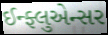
ઈન્ફ્લુએન્સર